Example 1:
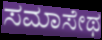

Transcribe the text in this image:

ಸಮಾಸೇಥ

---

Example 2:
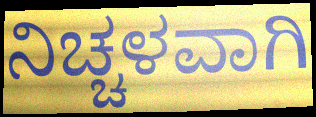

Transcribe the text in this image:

ನಿಚ್ಚಳವಾಗಿ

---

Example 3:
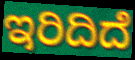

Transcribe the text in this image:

ಇರಿದಿದೆ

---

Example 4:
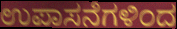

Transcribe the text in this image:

ಉಪಾಸನೆಗಳಿಂದ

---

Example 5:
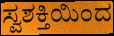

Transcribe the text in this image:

ಸ್ವಶಕ್ತಿಯಿಂದ